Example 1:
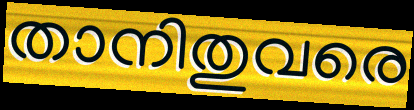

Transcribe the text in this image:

താനിതുവരെ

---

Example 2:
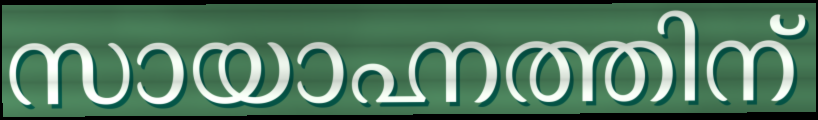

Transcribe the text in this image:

സായാഹ്നത്തിന്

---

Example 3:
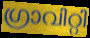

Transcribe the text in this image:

ഗ്രാവിറ്റി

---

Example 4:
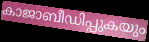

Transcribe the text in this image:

കാജാബീഡിപ്പുകയും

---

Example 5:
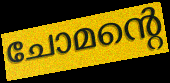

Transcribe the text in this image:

ചോമന്റെ